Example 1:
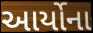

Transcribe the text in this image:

આર્યોના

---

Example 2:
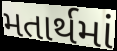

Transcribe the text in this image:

મતાર્થમાં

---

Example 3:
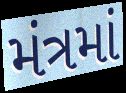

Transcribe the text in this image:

મંત્રમાં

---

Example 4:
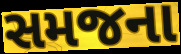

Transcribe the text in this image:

સમજના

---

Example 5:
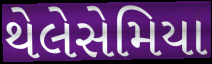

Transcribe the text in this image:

થેલેસેમિયા